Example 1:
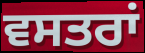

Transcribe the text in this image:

ਵਸਤਰਾਂ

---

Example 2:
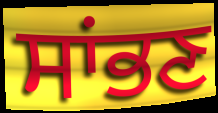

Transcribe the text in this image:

ਸਾਂਭਣ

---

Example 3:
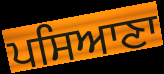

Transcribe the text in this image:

ਪਸਿਆਣਾ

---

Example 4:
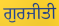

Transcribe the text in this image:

ਗੁਰਜੀਤੀ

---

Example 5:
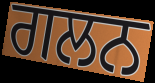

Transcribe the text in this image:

ਗਲਨ